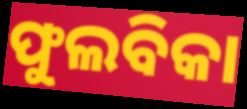
ଫୁଲବିକା